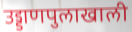
उड्डाणपुलाखाली